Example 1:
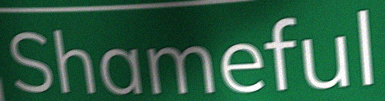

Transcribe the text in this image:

Shameful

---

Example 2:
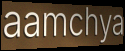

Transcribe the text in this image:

aamchya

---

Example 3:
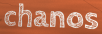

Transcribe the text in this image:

chanos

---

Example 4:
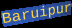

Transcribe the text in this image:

Baruipur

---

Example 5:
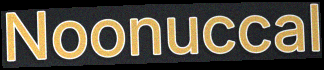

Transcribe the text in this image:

Noonuccal